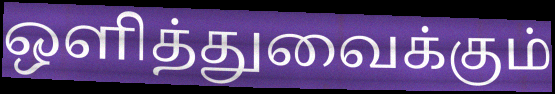
ஒளித்துவைக்கும்